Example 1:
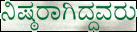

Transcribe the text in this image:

ನಿಷ್ಠರಾಗಿದ್ದವರು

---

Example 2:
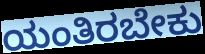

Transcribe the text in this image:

ಯಂತಿರಬೇಕು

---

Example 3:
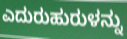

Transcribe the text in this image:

ಎದುರುಹುರುಳನ್ನು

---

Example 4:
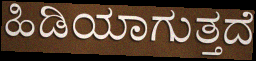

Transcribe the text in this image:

ಹಿಡಿಯಾಗುತ್ತದೆ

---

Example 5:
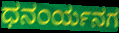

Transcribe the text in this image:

ಧನಂರ್ಯನಗ